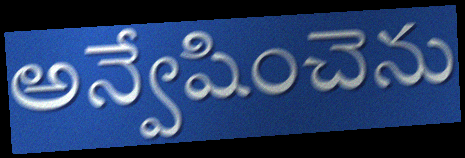
అన్వేషించెను